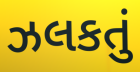
ઝલકતું